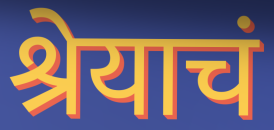
श्रेयाचं